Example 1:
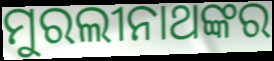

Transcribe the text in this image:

ମୁରଲୀନାଥଙ୍କର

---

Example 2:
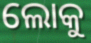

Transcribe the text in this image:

ଲୋକୁ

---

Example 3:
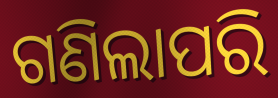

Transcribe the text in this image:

ଗଣିଲାପରି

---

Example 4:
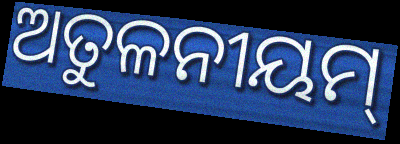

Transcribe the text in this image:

ଅତୁଳନୀୟମ୍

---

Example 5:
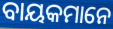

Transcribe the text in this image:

ବାୟକମାନେ